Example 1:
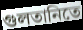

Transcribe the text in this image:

গুলতানিতে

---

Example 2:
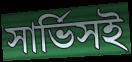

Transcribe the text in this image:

সার্ভিসই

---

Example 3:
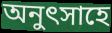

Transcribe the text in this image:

অনুৎসাহে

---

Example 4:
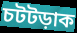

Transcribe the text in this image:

চটটড়াক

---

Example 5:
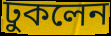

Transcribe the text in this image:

ঢুকলেন